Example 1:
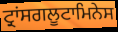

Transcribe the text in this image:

ਟ੍ਰਾਂਸਗਲੂਟਾਮਿਨੇਸ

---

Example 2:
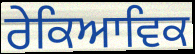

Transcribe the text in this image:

ਰੇਕਿਆਵਿਕ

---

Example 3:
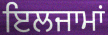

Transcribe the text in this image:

ਇਲਜਾਮਾਂ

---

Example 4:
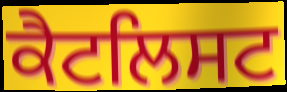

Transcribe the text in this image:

ਕੈਟਲਿਸਟ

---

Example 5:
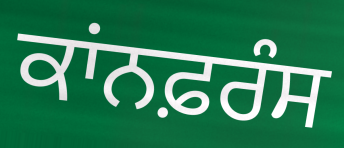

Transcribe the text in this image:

ਕਾਂਨਫ਼ਰੰਸ